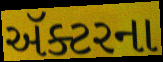
ઍક્ટરના